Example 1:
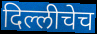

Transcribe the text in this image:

दिल्लीचेच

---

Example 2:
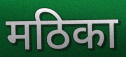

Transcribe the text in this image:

मठिका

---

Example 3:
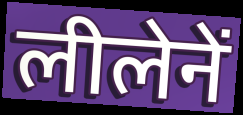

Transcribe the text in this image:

लीलेनें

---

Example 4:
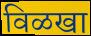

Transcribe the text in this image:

विळखा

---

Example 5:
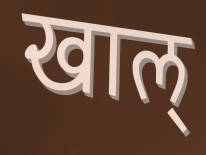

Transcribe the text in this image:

खाल्